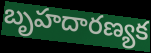
బృహదారణ్యక